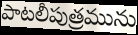
పాటలీపుత్రమును